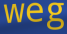
weg